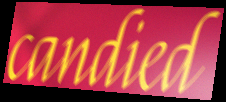
candied